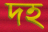
দহ